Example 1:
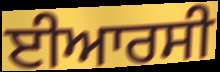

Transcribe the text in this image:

ਈਆਰਸੀ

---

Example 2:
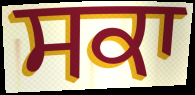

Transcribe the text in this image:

ਸਕਾ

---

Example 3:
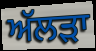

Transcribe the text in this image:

ਅੱਲੜਾ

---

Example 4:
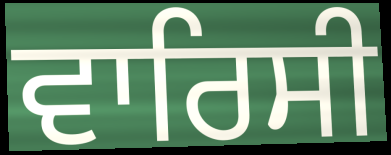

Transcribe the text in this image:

ਵਾਰਿਸੀ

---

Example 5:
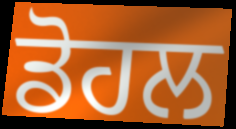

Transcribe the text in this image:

ਡੋਹਲ